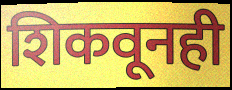
शिकवूनही